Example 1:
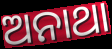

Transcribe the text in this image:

ଅନାଥା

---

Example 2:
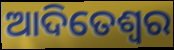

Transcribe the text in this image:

ଆଦିତେଶ୍ଵର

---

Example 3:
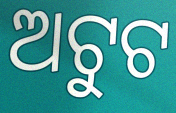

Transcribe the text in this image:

ଅଟୁଟ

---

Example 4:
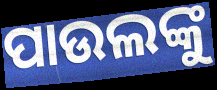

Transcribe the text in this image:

ପାଉଲଙ୍କୁ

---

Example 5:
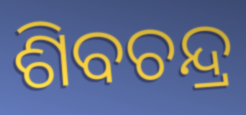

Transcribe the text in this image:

ଶିବଚନ୍ଦ୍ର